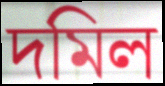
দমিল